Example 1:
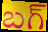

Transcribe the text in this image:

బగ్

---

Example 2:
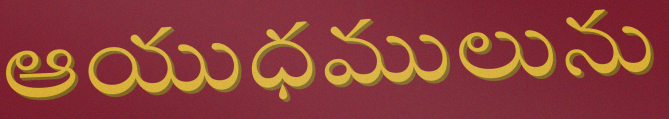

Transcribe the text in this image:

ఆయుధములును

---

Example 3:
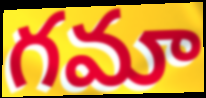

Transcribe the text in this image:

గమా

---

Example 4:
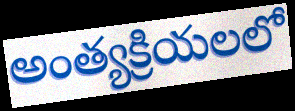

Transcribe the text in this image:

అంత్యక్రియలలో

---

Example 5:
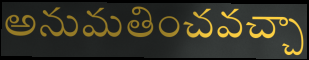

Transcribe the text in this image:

అనుమతించవచ్చా